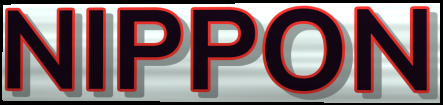
NIPPON